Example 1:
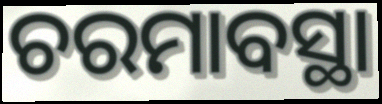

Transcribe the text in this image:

ଚରମାବସ୍ଥା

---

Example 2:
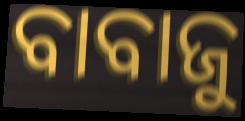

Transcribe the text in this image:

ବାବାଜୁ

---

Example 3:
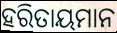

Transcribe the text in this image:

ହରିତାୟମାନ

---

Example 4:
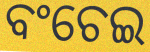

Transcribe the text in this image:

ବଂଚେଇ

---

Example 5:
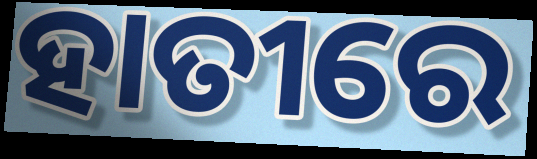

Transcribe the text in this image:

ହାତୀରେ